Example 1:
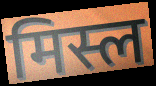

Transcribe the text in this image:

मिस्ल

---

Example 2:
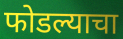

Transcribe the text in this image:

फोडल्याचा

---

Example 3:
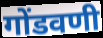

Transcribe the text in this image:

गोंडवणी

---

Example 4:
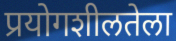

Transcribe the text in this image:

प्रयोगशीलतेला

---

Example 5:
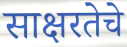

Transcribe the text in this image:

साक्षरतेचे